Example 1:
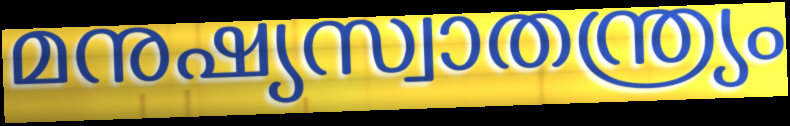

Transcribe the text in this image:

മനുഷ്യസ്വാതന്ത്ര്യം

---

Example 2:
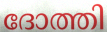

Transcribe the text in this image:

ദോത്തി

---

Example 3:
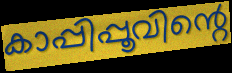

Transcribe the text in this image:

കാപ്പിപ്പൂവിന്റെ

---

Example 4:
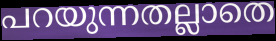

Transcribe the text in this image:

പറയുന്നതല്ലാതെ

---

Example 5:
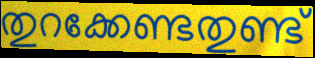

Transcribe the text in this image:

തുറക്കേണ്ടതുണ്ട്